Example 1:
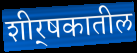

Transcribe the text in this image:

शीर्षकातील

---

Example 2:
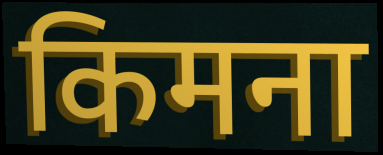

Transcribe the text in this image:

किमना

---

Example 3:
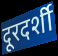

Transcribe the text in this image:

दूरदर्शी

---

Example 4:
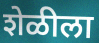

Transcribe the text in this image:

शेळीला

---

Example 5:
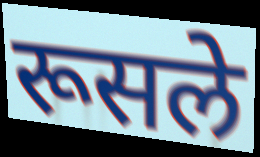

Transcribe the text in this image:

रूसले